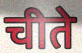
चीते